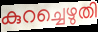
കുറച്ചെഴുതി